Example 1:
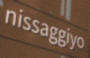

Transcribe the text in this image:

nissaggiyo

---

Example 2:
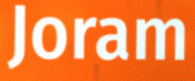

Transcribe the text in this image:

Joram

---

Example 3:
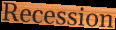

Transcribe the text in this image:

Recession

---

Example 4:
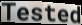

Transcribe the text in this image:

Tested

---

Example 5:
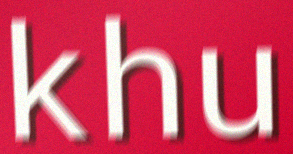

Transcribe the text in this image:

khu